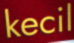
kecil